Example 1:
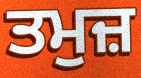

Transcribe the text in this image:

ਤਮੁਜ਼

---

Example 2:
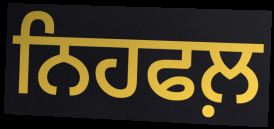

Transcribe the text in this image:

ਨਿਹਫਲ਼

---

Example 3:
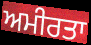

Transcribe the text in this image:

ਅਮੀਰਤਾ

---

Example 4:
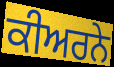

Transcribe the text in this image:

ਕੀਅਰਨੇ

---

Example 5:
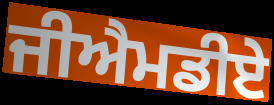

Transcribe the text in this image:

ਜੀਐਮਡੀਏ